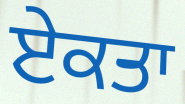
ਏਕਤਾ